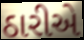
ઠારીએ